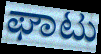
ಘಾಟು